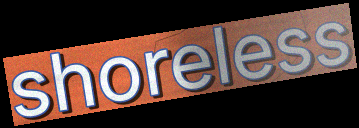
shoreless